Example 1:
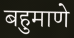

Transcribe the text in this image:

बहुमाणे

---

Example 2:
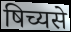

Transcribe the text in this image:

षिच्यसे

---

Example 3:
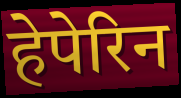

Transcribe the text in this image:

हेपेरिन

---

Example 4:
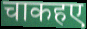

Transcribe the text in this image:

चाकहए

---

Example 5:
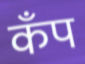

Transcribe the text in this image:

कॅंप